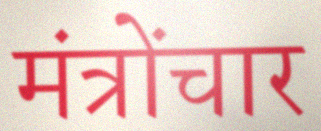
मंत्रोंचार